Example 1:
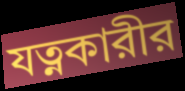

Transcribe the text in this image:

যত্নকারীর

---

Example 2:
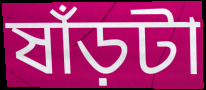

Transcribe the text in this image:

ষাঁড়টা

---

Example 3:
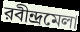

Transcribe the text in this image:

রবীন্দ্রমেলা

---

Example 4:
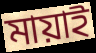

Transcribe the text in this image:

মায়াই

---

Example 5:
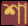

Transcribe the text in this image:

শা